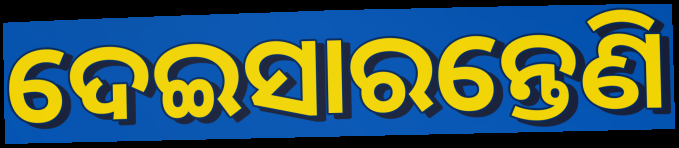
ଦେଇସାରନ୍ତେଣି